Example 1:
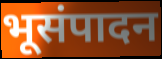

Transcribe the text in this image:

भूसंपादन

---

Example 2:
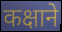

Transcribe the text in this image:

कक्षाने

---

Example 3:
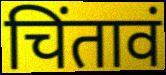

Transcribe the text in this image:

चिंतावं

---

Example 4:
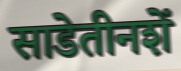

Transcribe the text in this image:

साडेतीनशें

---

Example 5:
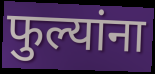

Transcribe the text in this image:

फुल्यांना